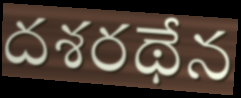
దశరథేన